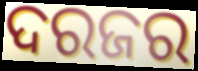
ଦରଜର